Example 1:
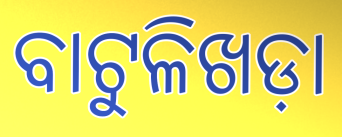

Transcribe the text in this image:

ବାଟୁଳିଖଡ଼ା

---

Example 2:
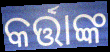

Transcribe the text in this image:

କର୍ତ୍ତାଙ୍କ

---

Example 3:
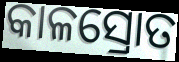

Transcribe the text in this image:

କାଳସ୍ରୋତ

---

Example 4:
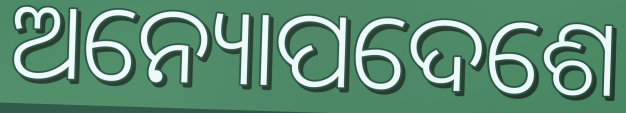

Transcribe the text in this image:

ଅନ୍ୟୋପଦେଶେ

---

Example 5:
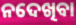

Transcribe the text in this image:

ନଦେଖିବା